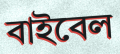
বাইবেল